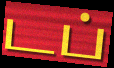
டப்